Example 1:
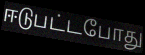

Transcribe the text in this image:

ஈடுபட்டபோது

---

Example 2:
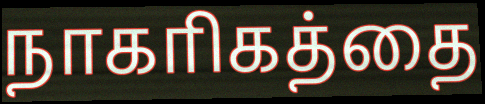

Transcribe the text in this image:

நாகரிகத்தை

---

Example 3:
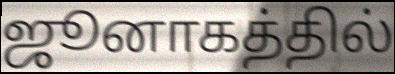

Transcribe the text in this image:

ஜூனாகத்தில்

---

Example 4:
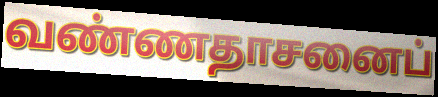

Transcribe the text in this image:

வண்ணதாசனைப்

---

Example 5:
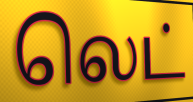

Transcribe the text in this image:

லெட்